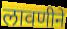
लावणीने